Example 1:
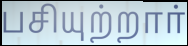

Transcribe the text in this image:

பசியுற்றார்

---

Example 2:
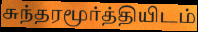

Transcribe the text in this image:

சுந்தரமூர்த்தியிடம்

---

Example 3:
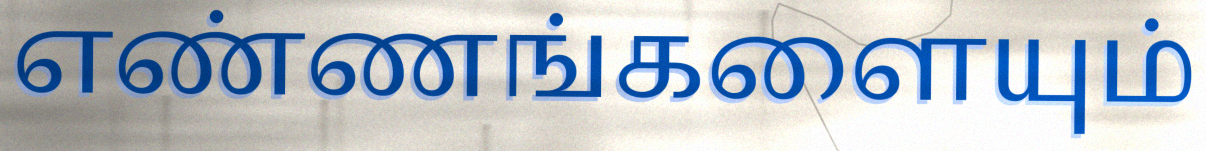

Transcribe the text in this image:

எண்ணங்களையும்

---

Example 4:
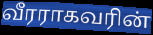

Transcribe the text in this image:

வீரராகவரின்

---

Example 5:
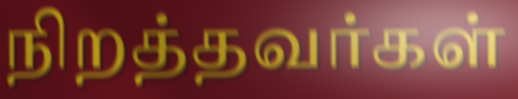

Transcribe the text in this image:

நிறத்தவர்கள்